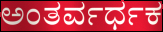
ಅಂತರ್ವರ್ಧಕ